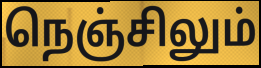
நெஞ்சிலும்